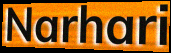
Narhari